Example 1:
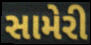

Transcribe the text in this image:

સામેરી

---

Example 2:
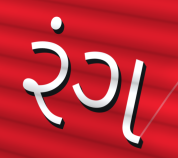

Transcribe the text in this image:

રંગ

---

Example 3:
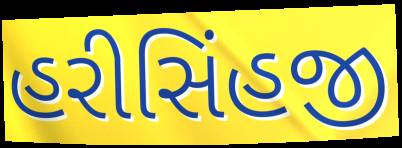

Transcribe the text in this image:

હરીસિંહજી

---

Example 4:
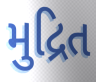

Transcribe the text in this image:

મુદ્રિત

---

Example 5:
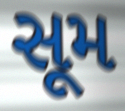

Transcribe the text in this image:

સૂમ